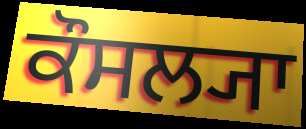
ਕੌਸਲ੍ਯਾ